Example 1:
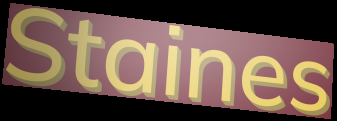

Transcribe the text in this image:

Staines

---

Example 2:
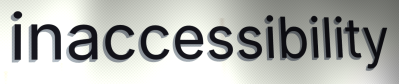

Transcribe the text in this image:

inaccessibility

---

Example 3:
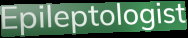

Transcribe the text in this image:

Epileptologist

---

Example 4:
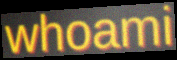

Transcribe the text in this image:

whoami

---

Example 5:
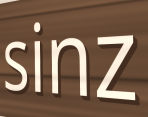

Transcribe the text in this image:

sinz